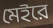
মেইরে